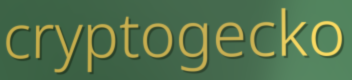
cryptogecko